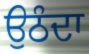
ਉਠੰਦਾ